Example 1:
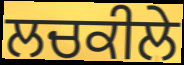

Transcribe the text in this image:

ਲਚਕੀਲੇ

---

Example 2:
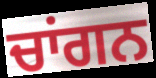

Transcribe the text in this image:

ਚਾਂਗਨ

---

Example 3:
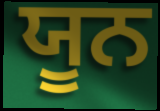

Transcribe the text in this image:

ਯੂਨ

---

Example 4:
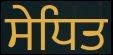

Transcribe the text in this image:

ਸੇਧਿਤ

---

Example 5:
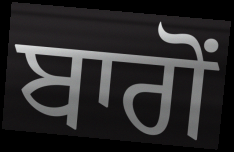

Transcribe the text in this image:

ਬਾਗੋਂ